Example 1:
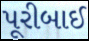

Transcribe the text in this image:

પૂરીબાઈ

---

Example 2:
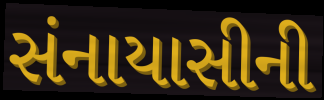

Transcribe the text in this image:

સંનાયાસીની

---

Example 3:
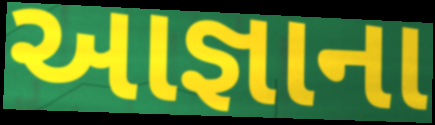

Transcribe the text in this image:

આજ્ઞાના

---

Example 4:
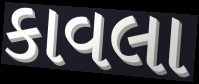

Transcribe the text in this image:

કાવલા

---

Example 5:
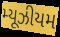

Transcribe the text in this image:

મ્યૂઝીયમ